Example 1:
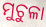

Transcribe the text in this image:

ମୁଚୁଳା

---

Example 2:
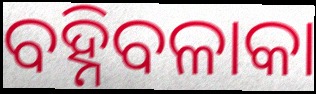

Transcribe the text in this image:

ବହ୍ନିବଳାକା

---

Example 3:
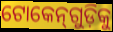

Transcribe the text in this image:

ଟୋକେନ୍‌ଗୁଡ଼ିକୁ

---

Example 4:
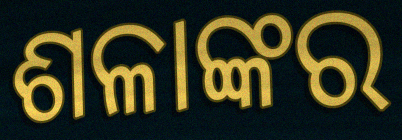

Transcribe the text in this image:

ଶଳାଙ୍କର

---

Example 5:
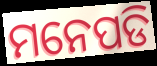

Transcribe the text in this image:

ମନେପଡି